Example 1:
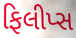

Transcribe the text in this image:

ફિલીપ્સ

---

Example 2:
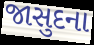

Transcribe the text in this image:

જાસુદના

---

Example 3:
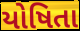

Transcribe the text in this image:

યોષિતા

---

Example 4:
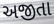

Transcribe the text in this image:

અજીતા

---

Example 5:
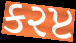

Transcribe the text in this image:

કરપ્ટ